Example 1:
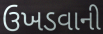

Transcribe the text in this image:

ઉખડવાની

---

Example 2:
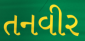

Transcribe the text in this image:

તનવીર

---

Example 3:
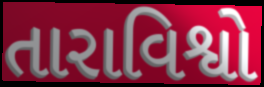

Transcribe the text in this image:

તારાવિશ્વો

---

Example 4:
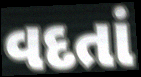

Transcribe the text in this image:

વદતાં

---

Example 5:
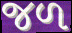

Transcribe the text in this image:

જળ